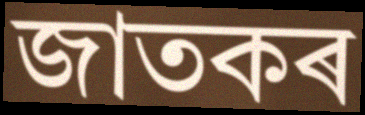
জাতকৰ